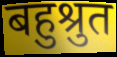
बहुश्रुत